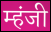
म्हंजी